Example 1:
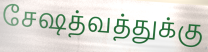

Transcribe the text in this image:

சேஷத்வத்துக்கு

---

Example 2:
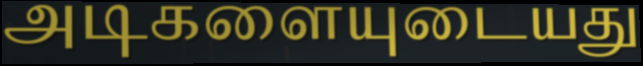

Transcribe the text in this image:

அடிகளையுடையது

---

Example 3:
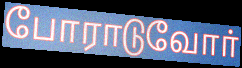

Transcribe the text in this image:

போராடுவோர்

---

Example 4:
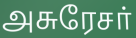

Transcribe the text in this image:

அசுரேசர்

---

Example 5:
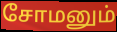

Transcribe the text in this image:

சோமனும்